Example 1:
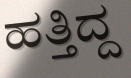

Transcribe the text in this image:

ಹತ್ತಿದ್ದ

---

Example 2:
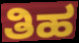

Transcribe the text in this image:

ತಿಹ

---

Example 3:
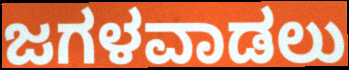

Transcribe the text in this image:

ಜಗಳವಾಡಲು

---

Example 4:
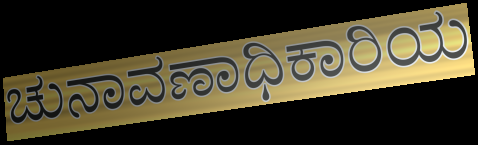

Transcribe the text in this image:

ಚುನಾವಣಾಧಿಕಾರಿಯ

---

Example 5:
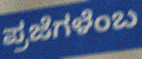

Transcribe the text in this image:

ಪ್ರಜೆಗಳೆಂಬ